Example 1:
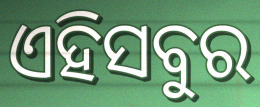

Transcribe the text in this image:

ଏହିସବୁର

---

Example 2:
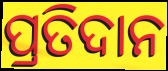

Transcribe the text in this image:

ପ୍ରତିଦାନ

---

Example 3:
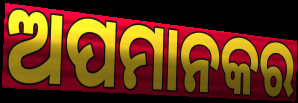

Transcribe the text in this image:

ଅପମାନକର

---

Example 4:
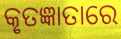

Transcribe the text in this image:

କୃତଜ୍ଞାତାରେ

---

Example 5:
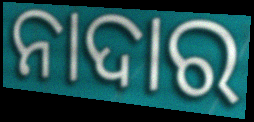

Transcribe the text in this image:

ନାଦାର